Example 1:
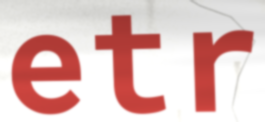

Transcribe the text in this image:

etr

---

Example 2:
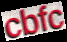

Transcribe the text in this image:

cbfc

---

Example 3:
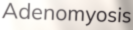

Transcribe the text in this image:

Adenomyosis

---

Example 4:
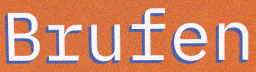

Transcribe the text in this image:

Brufen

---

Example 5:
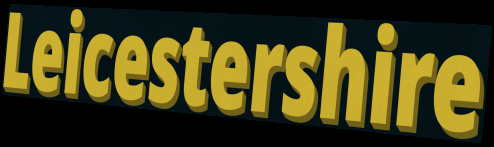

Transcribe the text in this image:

Leicestershire